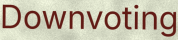
Downvoting